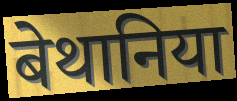
बेथानिया